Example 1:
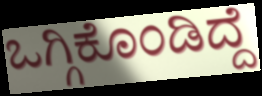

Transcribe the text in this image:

ಒಗ್ಗಿಕೊಂಡಿದ್ದೆ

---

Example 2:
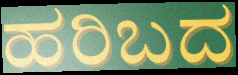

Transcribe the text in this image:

ಹರಿಬದ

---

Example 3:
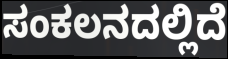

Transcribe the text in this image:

ಸಂಕಲನದಲ್ಲಿದೆ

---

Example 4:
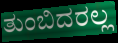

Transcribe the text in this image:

ತುಂಬಿದರಲ್ಲ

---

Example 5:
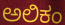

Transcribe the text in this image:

ಅಲಿಕಂ